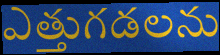
ఎత్తుగడలను